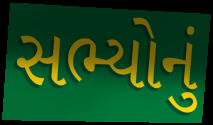
સભ્યોનું